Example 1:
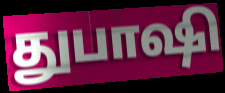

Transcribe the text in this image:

துபாஷி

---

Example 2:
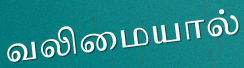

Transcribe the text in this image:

வலிமையால்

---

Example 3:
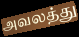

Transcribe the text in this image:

அவலத்து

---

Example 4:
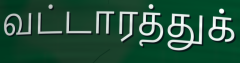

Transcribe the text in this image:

வட்டாரத்துக்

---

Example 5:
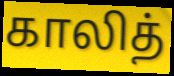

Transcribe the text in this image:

காலித்